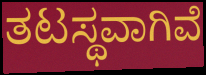
ತಟಸ್ಥವಾಗಿವೆ